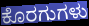
ಕೊರಗುಗಳು